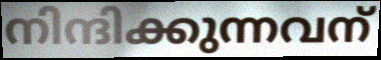
നിന്ദിക്കുന്നവന്